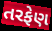
તરફેણ